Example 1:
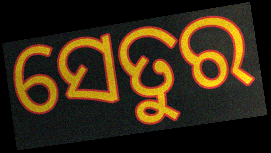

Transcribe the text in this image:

ସେତୁର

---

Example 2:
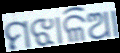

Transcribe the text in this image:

ମଝାଳିଆ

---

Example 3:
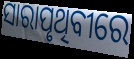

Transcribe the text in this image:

ସାରାପୃଥିବୀରେ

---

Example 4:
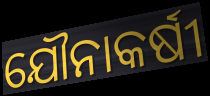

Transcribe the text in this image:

ଯୌନାକର୍ଷୀ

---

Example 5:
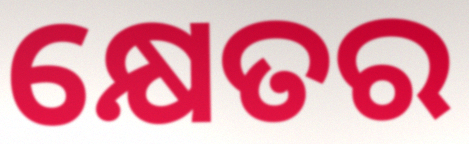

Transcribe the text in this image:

କ୍ଷେତର